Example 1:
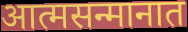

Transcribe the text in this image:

आत्मसन्मानात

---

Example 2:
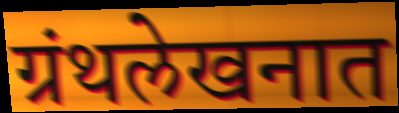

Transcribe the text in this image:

ग्रंथलेखनात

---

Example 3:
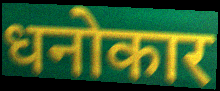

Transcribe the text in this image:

धनोकार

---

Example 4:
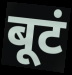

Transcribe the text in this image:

बूटं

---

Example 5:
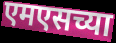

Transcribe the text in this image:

एमएसच्या